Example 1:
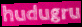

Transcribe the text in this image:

hudugru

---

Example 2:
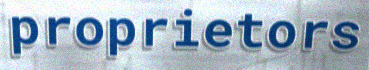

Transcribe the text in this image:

proprietors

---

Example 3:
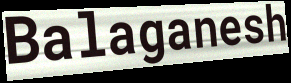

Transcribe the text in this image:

Balaganesh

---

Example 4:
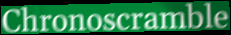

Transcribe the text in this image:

Chronoscramble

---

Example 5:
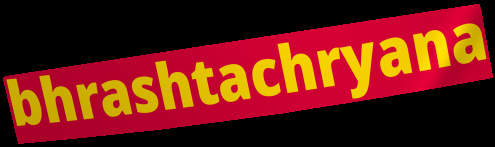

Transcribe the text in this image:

bhrashtachryana